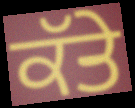
ਕੱਤੇ